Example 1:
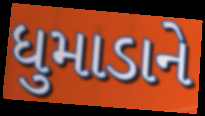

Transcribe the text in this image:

ધુમાડાને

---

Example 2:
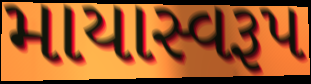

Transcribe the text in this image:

માયાસ્વરૂપ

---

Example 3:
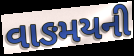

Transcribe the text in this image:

વાઙમયની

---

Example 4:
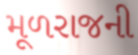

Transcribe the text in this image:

મૂળરાજની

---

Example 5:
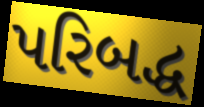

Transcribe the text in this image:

પરિબદ્ધ